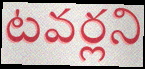
టవర్లని